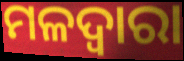
ମଳଦ୍ଵାରା